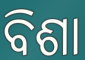
ବିଶା